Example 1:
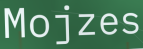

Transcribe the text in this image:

Mojzes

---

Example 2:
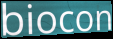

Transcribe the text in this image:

biocon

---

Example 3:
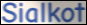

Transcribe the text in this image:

Sialkot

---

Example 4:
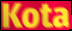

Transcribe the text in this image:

Kota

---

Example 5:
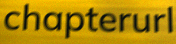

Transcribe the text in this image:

chapterurl